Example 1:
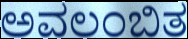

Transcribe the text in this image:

ಅವಲಂಬಿತ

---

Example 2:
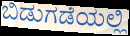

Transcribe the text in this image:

ಬಿಡುಗಡೆಯಲ್ಲಿ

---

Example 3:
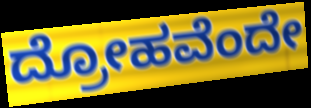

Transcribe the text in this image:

ದ್ರೋಹವೆಂದೇ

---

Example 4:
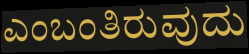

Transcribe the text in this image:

ಎಂಬಂತಿರುವುದು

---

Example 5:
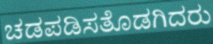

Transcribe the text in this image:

ಚಡಪಡಿಸತೊಡಗಿದರು